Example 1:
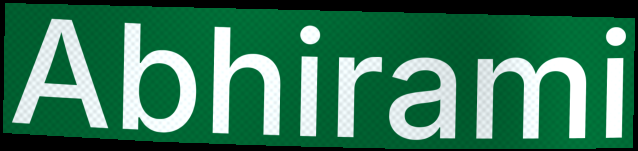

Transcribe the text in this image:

Abhirami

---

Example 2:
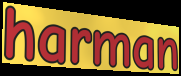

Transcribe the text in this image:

harman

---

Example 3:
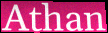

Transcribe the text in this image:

Athan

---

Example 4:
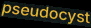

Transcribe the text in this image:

pseudocyst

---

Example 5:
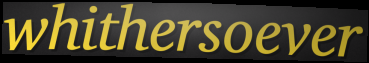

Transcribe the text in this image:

whithersoever